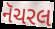
નૅચરલ